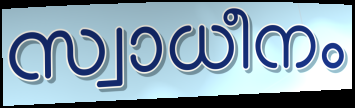
സ്വാധീനം